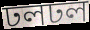
ঢলঢল